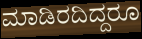
ಮಾಡಿರದಿದ್ದರೂ